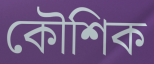
কৌশিক